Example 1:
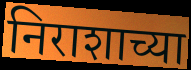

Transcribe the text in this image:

निराशाच्या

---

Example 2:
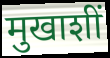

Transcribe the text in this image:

मुखाशीं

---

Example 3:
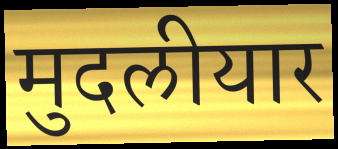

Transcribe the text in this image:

मुदलीयार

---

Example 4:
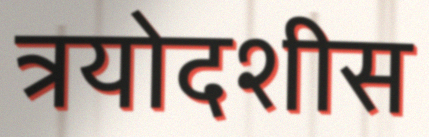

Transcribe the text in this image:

त्रयोदशीस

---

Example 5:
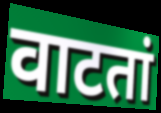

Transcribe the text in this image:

वाटतां